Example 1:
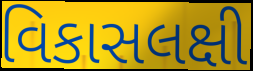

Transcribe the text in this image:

વિકાસલક્ષી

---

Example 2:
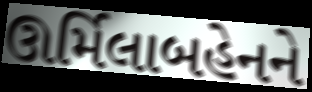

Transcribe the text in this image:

ઊર્મિલાબહેનને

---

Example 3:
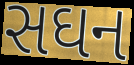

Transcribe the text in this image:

સઘન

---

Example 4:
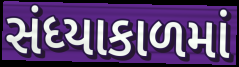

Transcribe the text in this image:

સંધ્યાકાળમાં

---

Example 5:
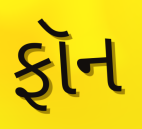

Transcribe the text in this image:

ફૉન